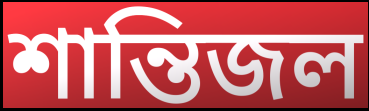
শান্তিজল